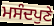
ਮਸੰਦਪੁਣੇ